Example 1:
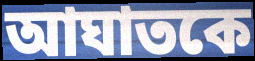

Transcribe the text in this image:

আঘাতকে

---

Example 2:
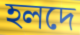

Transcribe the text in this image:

হলদে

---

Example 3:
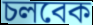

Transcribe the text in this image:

চলবেক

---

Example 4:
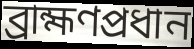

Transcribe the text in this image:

ব্রাহ্মণপ্রধান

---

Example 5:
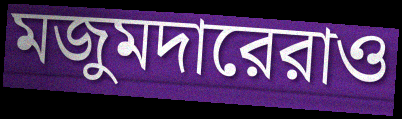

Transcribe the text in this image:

মজুমদারেরাও